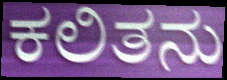
ಕಲಿತನು